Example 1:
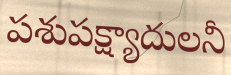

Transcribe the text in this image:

పశుపక్ష్యాదులనీ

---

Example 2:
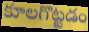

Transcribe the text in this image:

కూలగొట్టడం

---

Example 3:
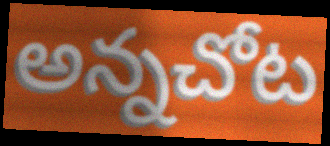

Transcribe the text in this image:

అన్నచోట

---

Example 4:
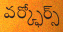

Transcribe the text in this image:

వర్క్ఫోర్స్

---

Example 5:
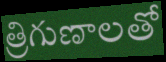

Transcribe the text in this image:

త్రిగుణాలతో